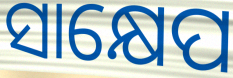
ସାକ୍ଷେପ